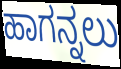
ಹಾಗನ್ನಲು